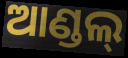
ଆଣ୍ଡଲ୍